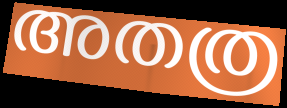
അതത്ര